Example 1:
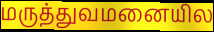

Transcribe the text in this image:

மருத்துவமனையில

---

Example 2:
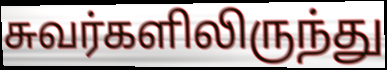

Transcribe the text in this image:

சுவர்களிலிருந்து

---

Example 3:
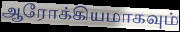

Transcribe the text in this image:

ஆரோக்கியமாகவும்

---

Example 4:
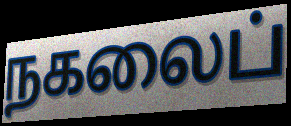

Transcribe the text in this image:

நகலைப்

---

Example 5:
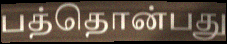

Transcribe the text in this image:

பத்தொன்பது